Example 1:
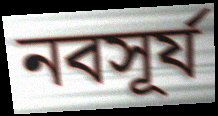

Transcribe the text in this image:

নবসূর্য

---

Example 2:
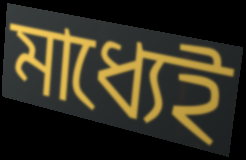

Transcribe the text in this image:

মাধ্যেই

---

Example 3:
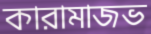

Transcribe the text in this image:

কারামাজভ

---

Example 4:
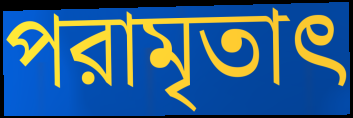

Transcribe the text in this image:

পরামৃতাৎ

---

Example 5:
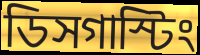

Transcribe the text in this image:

ডিসগাস্টিং